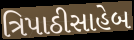
ત્રિપાઠીસાહેબ